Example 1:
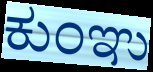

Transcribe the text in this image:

ಕುಂಞು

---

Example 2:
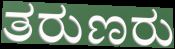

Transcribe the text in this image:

ತರುಣರು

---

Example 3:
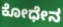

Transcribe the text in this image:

ಕೋಧೇನ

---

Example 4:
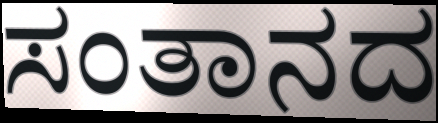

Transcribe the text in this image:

ಸಂತಾನದ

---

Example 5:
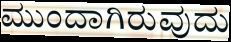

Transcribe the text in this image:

ಮುಂದಾಗಿರುವುದು